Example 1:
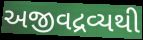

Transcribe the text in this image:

અજીવદ્રવ્યથી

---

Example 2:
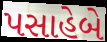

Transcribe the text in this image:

પસાહેબે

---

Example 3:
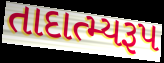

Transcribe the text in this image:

તાદાત્મ્યરૂપ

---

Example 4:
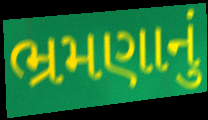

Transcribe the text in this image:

ભ્રમણાનું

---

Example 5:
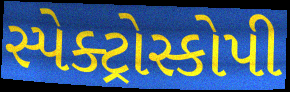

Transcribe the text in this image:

સ્પેક્ટ્રોસ્કોપી